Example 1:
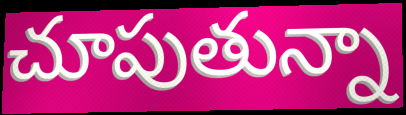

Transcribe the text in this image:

చూపుతున్నా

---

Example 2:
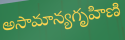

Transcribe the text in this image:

అసామాన్యగృహిణి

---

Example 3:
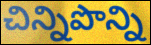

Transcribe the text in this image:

చిన్నిపొన్ని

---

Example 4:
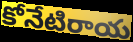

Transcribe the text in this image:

కోనేటిరాయ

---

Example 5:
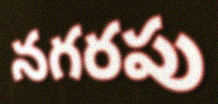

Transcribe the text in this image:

నగరపు